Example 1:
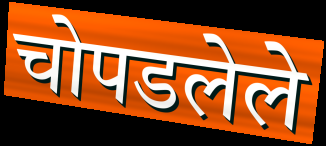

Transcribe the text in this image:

चोपडलेले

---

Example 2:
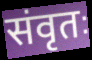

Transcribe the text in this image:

संवृतः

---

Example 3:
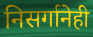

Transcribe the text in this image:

निसर्गानेही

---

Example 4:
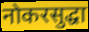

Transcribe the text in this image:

नोकरसुद्धा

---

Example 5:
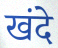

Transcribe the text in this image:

खंदे